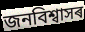
জনবিশ্বাসৰ